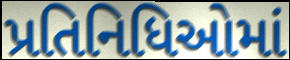
પ્રતિનિધિઓમાં